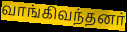
வாங்கிவந்தனர்